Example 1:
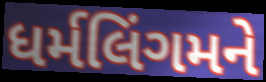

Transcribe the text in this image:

ધર્મલિંગમને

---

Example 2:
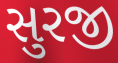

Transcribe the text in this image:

સુરજી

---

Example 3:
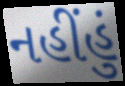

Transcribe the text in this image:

નહીંહું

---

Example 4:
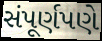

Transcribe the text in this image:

સંપૂર્ણપણે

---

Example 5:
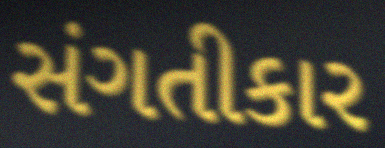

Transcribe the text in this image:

સંગતીકાર